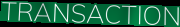
TRANSACTION